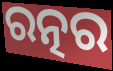
ରତ୍ନର